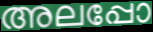
അലപ്പോ